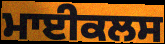
ਮਾਈਕਲਸ